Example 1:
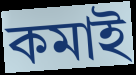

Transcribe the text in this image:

কমাই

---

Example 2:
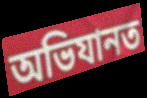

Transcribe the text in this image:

অভিযানত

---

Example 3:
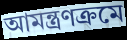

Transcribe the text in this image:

আমন্ত্ৰণক্ৰমে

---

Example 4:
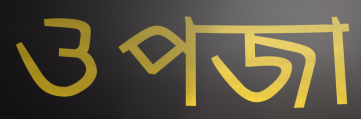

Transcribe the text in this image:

ওপজা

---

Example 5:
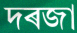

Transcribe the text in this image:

দৰজা